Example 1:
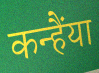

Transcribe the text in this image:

कन्हैंया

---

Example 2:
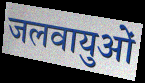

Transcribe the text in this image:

जलवायुओं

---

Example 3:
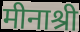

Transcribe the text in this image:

मीनाश्री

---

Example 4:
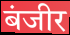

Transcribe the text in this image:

बंजीर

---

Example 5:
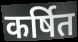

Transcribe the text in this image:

कर्षित